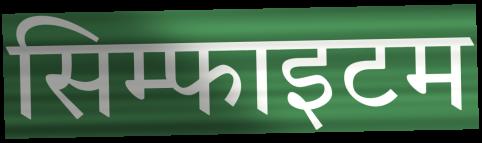
सिम्फाइटम